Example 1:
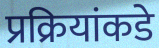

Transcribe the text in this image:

प्रक्रियांकडे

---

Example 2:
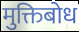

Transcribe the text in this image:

मुक्तिबोध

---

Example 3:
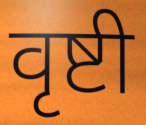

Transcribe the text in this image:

वृष्टी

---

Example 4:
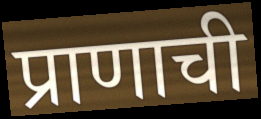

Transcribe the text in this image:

प्राणाची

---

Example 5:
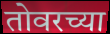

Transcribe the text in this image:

तोवरच्या